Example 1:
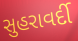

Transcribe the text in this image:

સુહરાવર્દી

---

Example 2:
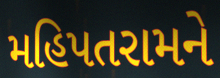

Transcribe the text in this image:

મહિપતરામને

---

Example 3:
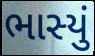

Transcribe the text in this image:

ભાસ્યું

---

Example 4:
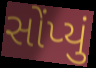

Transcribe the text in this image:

સોંપ્યું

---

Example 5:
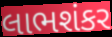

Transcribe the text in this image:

લાભશંકર